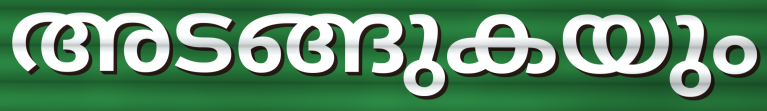
അടങ്ങുകയും